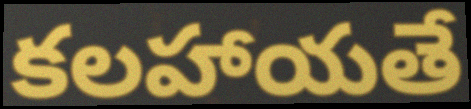
కలహాయతే